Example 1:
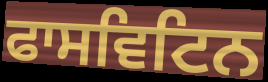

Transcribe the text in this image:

ਫਾਸਵਿਟਿਨ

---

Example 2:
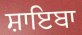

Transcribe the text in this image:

ਸ਼ਾਇਬਾ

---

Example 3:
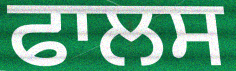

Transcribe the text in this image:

ਫਾਲਸ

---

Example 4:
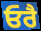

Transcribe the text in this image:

ਓਰੈ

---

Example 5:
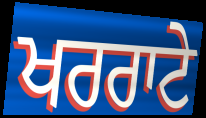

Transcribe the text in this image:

ਖਰਰਾਟੇ